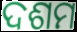
ଦଶମ